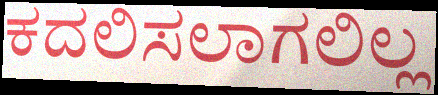
ಕದಲಿಸಲಾಗಲಿಲ್ಲ